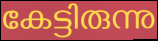
കേട്ടിരുന്നു